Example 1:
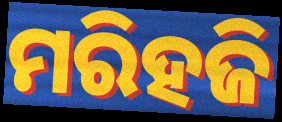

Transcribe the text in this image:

ମରିହଜି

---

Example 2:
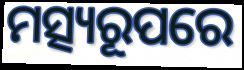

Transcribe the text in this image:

ମତ୍ସ୍ୟରୂପରେ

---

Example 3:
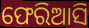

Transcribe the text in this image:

ଫେରିଆସି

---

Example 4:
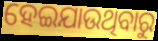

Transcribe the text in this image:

ହେଇଯାଉଥିବାରୁ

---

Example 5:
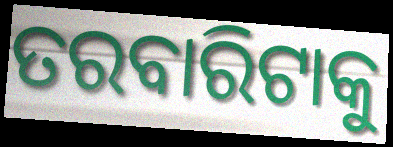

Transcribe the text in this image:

ତରବାରିଟାକୁ